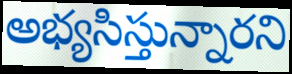
అభ్యసిస్తున్నారని